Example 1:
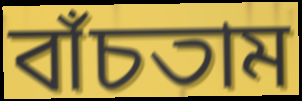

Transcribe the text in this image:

বাঁচতাম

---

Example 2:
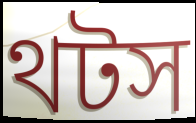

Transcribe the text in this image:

থটস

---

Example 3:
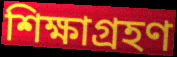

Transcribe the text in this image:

শিক্ষাগ্রহণ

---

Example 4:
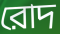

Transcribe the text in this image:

রোদ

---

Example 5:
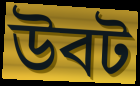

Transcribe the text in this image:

উবট